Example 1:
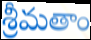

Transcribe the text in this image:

శ్రీమతాం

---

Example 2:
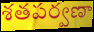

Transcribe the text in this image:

శతపర్వణా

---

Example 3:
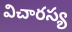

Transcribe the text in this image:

విచారస్య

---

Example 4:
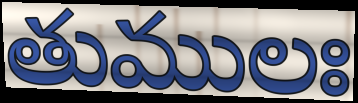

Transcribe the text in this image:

తుములః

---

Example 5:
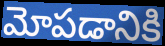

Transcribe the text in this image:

మోపడానికి